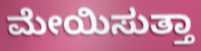
ಮೇಯಿಸುತ್ತಾ